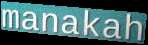
manakah